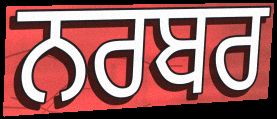
ਨਰਬਰ